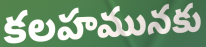
కలహమునకు